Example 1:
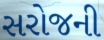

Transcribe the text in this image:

સરોજની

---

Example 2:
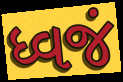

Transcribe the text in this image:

ધ્વજં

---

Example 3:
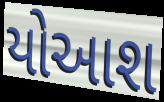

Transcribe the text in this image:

યોઆશ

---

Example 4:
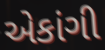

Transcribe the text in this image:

એકાંગી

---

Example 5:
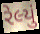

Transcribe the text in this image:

રેલ્યું